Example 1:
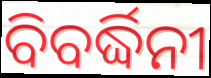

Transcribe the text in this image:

ବିବର୍ଦ୍ଧିନୀ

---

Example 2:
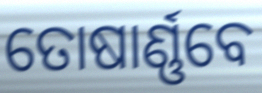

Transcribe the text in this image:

ତୋଷାର୍ଣ୍ଣବେ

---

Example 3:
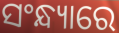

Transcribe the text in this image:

ସଂନ୍ଧ୍ଯାରେ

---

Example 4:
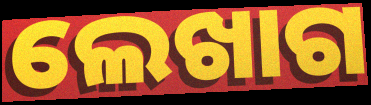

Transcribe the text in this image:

ଲେଖାଗ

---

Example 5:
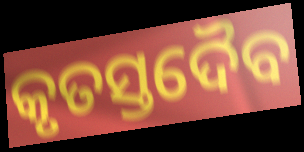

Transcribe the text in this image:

କୃତସ୍ତଦୈବ